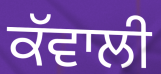
ਕੱਵਾਲੀ